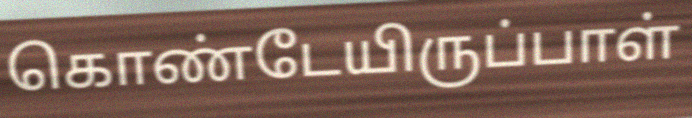
கொண்டேயிருப்பாள்